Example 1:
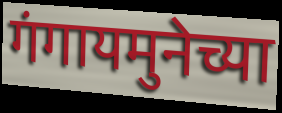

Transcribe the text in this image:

गंगायमुनेच्या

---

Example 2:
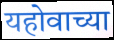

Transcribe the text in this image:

यहोवाच्या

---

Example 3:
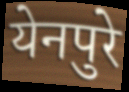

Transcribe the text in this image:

येनपुरे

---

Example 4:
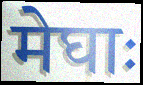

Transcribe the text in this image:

मेघाः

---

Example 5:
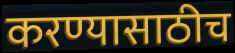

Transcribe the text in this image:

करण्यासाठीच